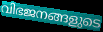
വിഭജനങ്ങളുടെ